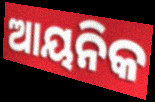
ଆୟନିକ